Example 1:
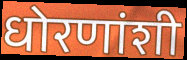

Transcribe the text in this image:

धोरणांशी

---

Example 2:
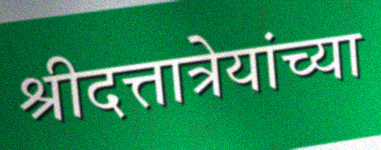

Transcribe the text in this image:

श्रीदत्तात्रेयांच्या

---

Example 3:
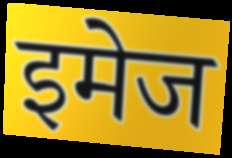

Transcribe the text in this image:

इमेज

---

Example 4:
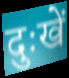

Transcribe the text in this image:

दुःखें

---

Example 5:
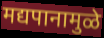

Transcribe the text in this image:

मद्यपानामुळे